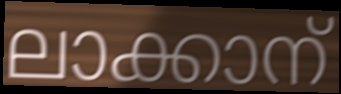
ലാക്കാന്